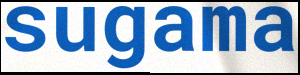
sugama